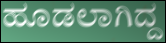
ಹೂಡಲಾಗಿದ್ದ